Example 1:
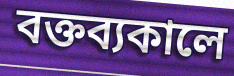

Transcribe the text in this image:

বক্তব্যকালে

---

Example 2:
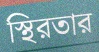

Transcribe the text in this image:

স্থিরতার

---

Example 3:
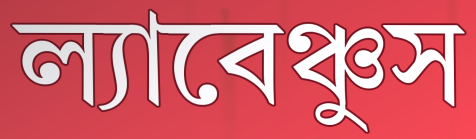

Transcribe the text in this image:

ল্যাবেঞ্চুস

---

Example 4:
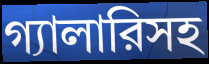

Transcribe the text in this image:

গ্যালারিসহ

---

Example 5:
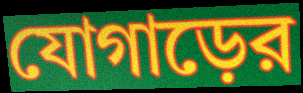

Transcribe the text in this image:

যোগাড়ের